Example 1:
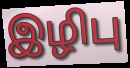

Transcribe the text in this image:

இழிபு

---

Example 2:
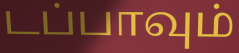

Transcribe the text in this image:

டப்பாவும்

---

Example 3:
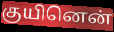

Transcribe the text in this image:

குயினென்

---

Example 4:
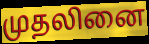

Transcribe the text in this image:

முதலினை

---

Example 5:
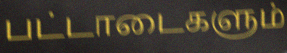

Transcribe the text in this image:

பட்டாடைகளும்